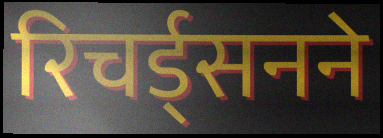
रिचर्ड्सनने